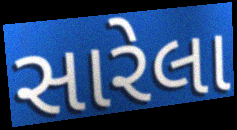
સારેલા